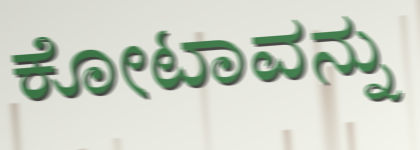
ಕೋಟಾವನ್ನು